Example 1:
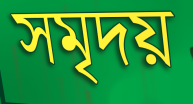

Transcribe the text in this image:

সমৃদয়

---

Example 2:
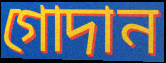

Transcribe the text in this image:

গোদান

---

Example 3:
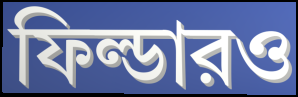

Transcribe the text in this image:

ফিল্ডারও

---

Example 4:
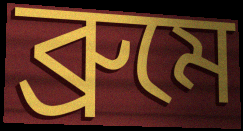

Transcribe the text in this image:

ব্রুমে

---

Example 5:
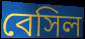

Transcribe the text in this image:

বেসিল